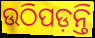
ଉଠିପଡ଼ନ୍ତି